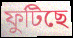
ফুটিছে